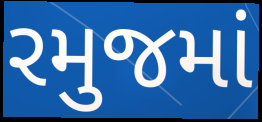
રમુજમાં